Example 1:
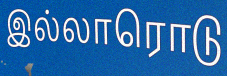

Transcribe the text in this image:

இல்லாரொடு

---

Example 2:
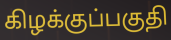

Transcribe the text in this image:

கிழக்குப்பகுதி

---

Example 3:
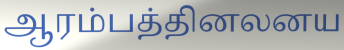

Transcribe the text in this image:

ஆரம்பத்தினலனய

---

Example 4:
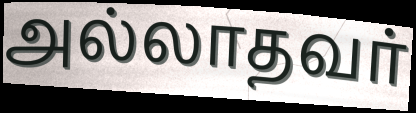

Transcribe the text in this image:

அல்லாதவர்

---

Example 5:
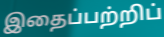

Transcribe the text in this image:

இதைப்பற்றிப்